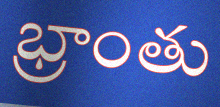
భ్రాంతు